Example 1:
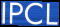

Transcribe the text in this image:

IPCL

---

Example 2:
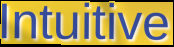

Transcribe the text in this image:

Intuitive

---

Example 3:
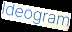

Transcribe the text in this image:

Ideogram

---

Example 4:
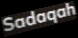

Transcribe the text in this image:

Sadaqah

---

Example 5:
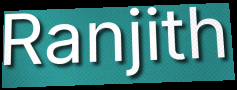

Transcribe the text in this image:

Ranjith